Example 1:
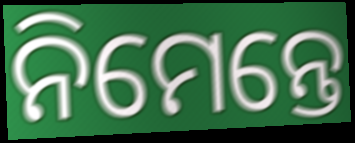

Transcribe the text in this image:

ନିମେନ୍ତେ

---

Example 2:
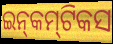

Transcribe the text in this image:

ଇନ୍‍କମ୍‍ଟିକସ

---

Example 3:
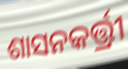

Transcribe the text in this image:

ଶାସନକର୍ତ୍ତ୍ରୀ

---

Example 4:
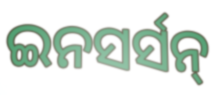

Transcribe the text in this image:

ଇନସର୍ସନ୍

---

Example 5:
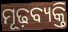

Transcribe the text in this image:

ମୂଢ଼ବ୍ୟକ୍ତି